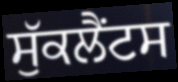
ਸੁੱਕਲੈਂਟਸ